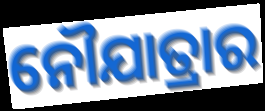
ନୌଯାତ୍ରାର